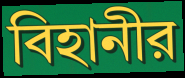
বিহানীর